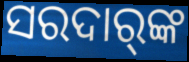
ସରଦାର୍‍ଙ୍କ